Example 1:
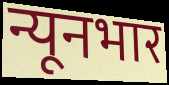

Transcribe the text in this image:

न्यूनभार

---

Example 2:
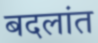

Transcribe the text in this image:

बदलांत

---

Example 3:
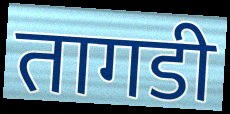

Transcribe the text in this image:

तागडी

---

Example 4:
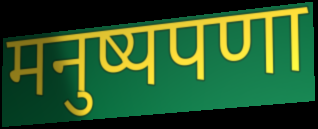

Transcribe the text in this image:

मनुष्यपणा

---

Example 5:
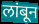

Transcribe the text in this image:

लांबून